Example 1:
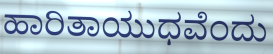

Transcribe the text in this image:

ಹಾರಿತಾಯುಧವೆಂದು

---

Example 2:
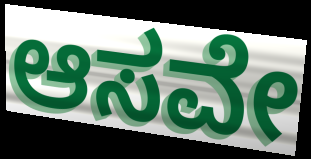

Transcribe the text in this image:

ಆಸವೇ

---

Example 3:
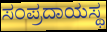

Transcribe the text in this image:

ಸಂಪ್ರದಾಯಸ್ಥ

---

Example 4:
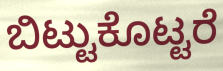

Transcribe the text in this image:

ಬಿಟ್ಟುಕೊಟ್ಟರೆ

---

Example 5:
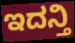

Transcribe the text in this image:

ಇದನ್ತಿ